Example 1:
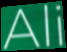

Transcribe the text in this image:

Ali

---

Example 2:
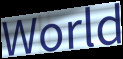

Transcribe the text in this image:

World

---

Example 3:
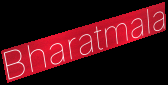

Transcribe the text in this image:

Bharatmala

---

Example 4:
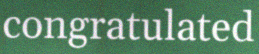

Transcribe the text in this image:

congratulated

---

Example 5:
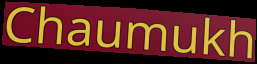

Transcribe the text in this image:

Chaumukh